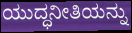
ಯುದ್ಧನೀತಿಯನ್ನು